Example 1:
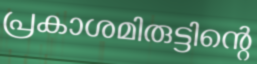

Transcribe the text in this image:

പ്രകാശമിരുട്ടിന്റെ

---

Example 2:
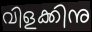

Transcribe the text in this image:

വിളക്കിനു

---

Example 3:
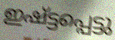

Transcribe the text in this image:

ഇഷ്ട്ടപ്പെട്ടു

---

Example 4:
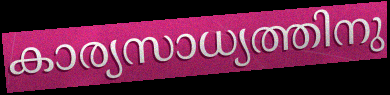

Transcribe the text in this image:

കാര്യസാധ്യത്തിനു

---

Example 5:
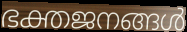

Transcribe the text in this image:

ഭക്തജനങ്ങൾ